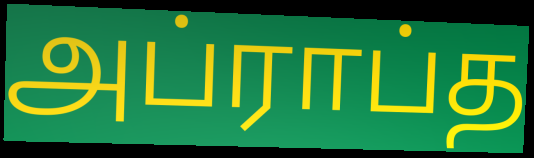
அப்ராப்த